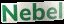
Nebel